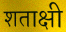
शताक्षी